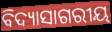
ବିଦ୍ୟାସାଗରୀୟ